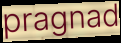
pragnad